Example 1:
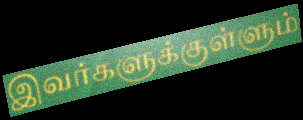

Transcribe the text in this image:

இவர்களுக்குள்ளும்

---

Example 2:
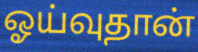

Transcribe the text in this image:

ஓய்வுதான்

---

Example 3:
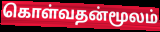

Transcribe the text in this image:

கொள்வதன்மூலம்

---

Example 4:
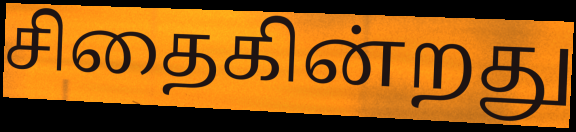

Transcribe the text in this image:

சிதைகின்றது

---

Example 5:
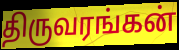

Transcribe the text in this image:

திருவரங்கன்